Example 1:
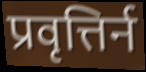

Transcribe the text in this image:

प्रवृत्तिर्न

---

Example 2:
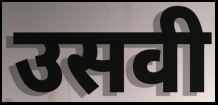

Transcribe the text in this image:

उसवी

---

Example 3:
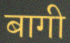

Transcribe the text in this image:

बागी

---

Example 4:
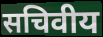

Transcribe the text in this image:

सचिवीय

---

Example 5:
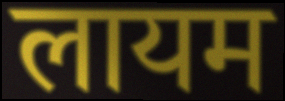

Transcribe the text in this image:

लायम